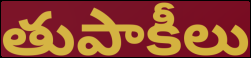
తుపాకీలు